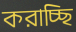
করাচ্ছি